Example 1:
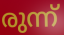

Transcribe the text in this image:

രുന്ന്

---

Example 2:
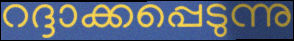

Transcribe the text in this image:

റദ്ദാക്കപ്പെടുന്നു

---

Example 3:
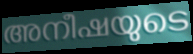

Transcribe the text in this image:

അനീഷയുടെ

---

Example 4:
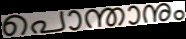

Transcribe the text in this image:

പൊന്താനും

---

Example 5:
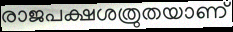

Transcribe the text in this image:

രാജപക്ഷശത്രുതയാണ്